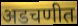
अडचणीत